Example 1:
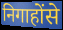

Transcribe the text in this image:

निगाहोंसे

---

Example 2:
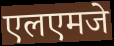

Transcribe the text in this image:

एलएमजे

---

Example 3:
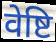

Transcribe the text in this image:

वेष्टि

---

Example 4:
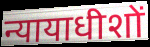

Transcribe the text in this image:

न्यायाधीशों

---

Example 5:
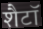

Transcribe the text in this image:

शैटॉ